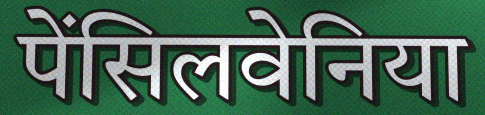
पेंसिलवेनिया